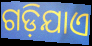
ଗଡ଼ିଯାଏ